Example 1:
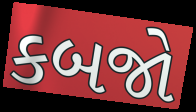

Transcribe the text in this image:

કબજો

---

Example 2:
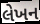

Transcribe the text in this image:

લેખન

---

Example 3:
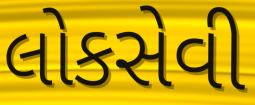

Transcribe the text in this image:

લોકસેવી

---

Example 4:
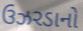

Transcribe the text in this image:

ઉઝરડાનો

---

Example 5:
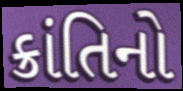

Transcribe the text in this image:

ક્રાંતિનો